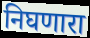
निघणारा